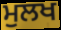
ਮੁਲਖ